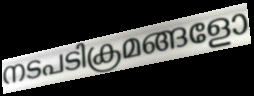
നടപടിക്രമങ്ങളോ